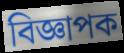
বিজ্ঞাপক